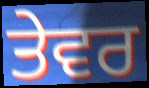
ਤੇਵਰ